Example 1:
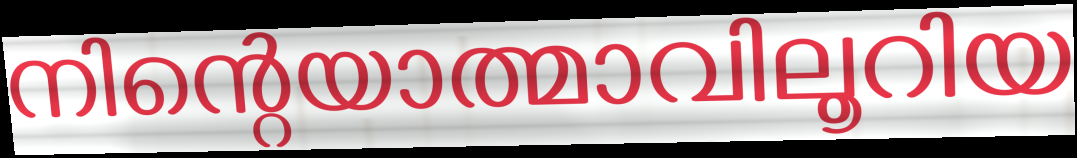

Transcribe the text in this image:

നിന്റെയാത്മാവിലൂറിയ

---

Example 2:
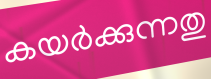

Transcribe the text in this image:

കയർക്കുന്നതു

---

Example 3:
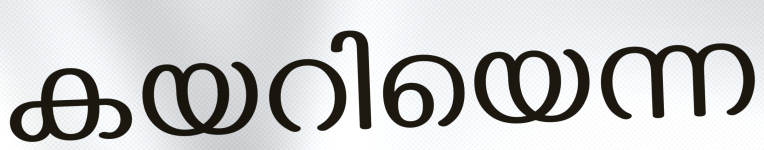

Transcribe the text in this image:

കയറിയെന്ന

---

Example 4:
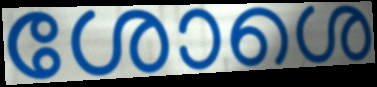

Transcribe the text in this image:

ശോശെ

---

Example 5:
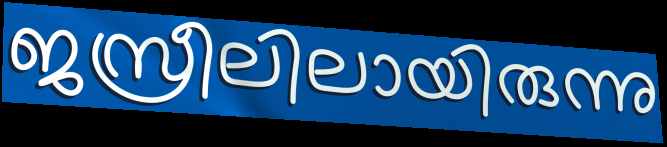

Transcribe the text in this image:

ജസ്രീലിലായിരുന്നു